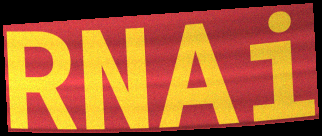
RNAi